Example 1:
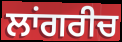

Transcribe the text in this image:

ਲਾਂਗਰੀਚ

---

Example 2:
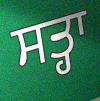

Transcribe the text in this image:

ਸਤ੍ਹਾ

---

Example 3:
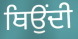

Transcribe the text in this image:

ਥਿਉਂਦੀ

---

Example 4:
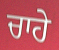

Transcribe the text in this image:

ਚਾਹੇ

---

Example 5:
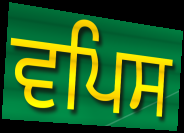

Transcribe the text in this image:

ਵਪਿਸ